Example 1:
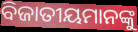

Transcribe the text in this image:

ବିଜାତୀୟମାନଙ୍କୁ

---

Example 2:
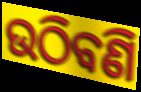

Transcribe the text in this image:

ଉଠିବଣି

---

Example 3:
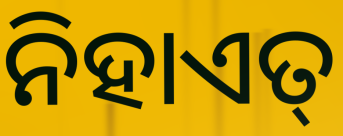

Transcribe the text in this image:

ନିହାଏତ୍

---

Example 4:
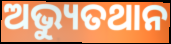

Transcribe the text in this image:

ଅଭ୍ୟୁତଥାନ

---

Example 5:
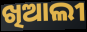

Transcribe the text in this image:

ଖିଆଲୀ